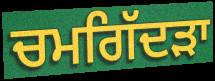
ਚਮਗਿੱਦੜਾ